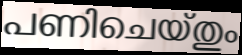
പണിചെയ്തും